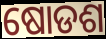
ଷୋଡଶ